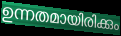
ഉന്നതമായിരിക്കും